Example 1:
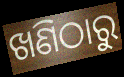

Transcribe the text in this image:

ଖଣିଠାରୁ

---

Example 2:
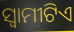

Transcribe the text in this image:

ସ୍ୱାମୀଟିଏ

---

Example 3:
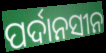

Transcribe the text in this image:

ପର୍ଦାନସୀନ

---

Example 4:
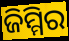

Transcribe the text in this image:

ଜିମ୍ମିର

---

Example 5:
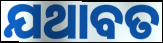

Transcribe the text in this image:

ଯଥାବତ